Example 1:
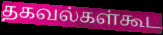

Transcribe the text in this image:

தகவல்கள்கூட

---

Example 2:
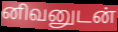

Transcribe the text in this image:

னிவனுடன்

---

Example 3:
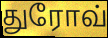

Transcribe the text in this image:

துரோவ்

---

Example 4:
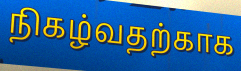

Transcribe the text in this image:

நிகழ்வதற்காக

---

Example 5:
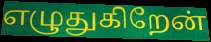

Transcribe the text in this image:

எழுதுகிறேன்